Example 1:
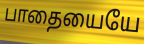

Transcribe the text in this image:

பாதையையே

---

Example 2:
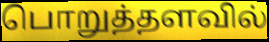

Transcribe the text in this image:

பொறுத்தளவில்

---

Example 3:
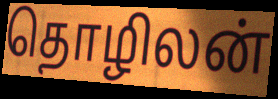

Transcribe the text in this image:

தொழிலன்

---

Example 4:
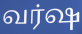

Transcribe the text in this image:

வர்ஷ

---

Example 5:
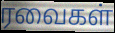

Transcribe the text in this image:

ரவைகள்